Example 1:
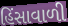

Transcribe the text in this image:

હિંસાવાળી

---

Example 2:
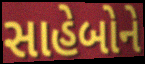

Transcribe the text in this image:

સાહેબોને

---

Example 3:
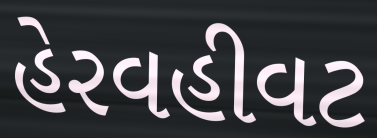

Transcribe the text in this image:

હેરવહીવટ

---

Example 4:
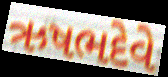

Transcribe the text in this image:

ઋષભદેવે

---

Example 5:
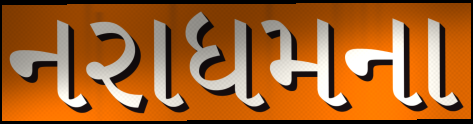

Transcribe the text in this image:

નરાધમના